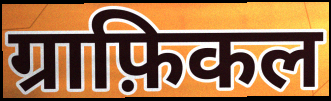
ग्राफ़िकल